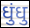
धुंधु